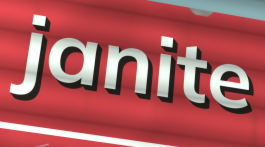
janite